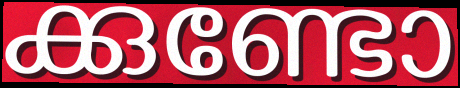
ക്കുണ്ടോ